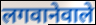
लगवानेवाले